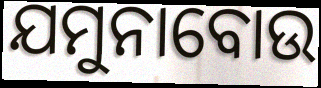
ଯମୁନାବୋଉ